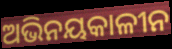
ଅଭିନୟକାଳୀନ